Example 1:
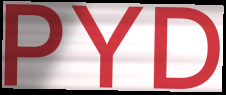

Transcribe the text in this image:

PYD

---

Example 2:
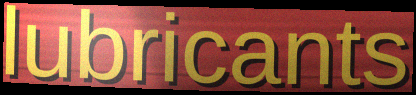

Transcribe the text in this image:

lubricants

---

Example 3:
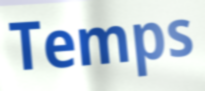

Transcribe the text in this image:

Temps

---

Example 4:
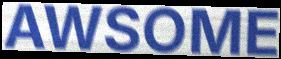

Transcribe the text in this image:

AWSOME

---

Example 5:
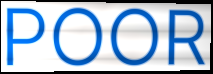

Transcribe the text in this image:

POOR